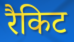
रैकिट